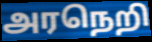
அரநெறி